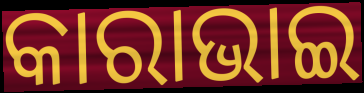
କାରାଭାଇ